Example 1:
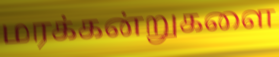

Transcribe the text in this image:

மரக்கன்றுகளை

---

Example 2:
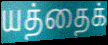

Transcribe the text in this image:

யத்தைக்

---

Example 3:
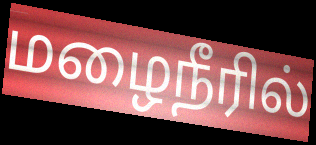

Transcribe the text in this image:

மழைநீரில்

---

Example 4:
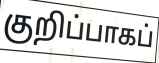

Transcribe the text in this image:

குறிப்பாகப்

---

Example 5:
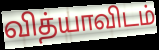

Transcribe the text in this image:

வித்யாவிடம்